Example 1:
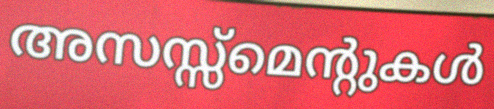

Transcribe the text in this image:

അസസ്സ്മെന്റുകൾ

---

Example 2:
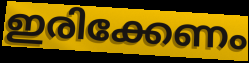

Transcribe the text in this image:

ഇരിക്കേണം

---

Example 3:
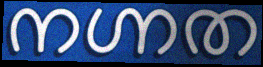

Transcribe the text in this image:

നഗ്നത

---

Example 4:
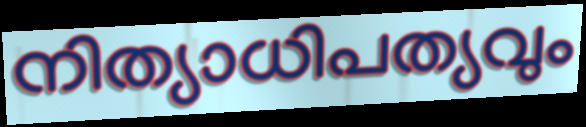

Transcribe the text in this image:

നിത്യാധിപത്യവും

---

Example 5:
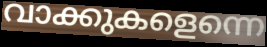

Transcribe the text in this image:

വാക്കുകളെന്നെ